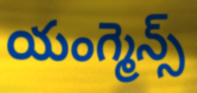
యంగ్మెన్స్